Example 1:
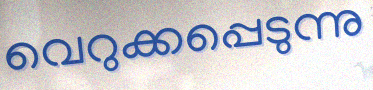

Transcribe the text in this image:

വെറുക്കപ്പെടുന്നു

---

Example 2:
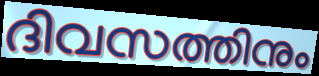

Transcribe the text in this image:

ദിവസത്തിനും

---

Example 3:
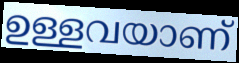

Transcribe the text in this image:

ഉള്ളവയാണ്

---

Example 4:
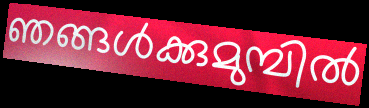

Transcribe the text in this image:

ഞങ്ങൾക്കുമുമ്പിൽ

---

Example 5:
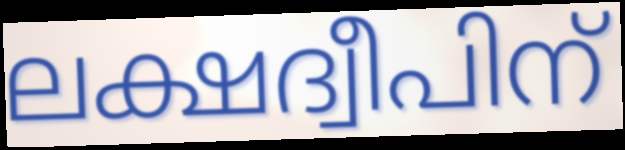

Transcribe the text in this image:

ലക്ഷദ്വീപിന്